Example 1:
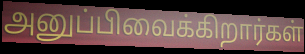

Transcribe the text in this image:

அனுப்பிவைக்கிறார்கள்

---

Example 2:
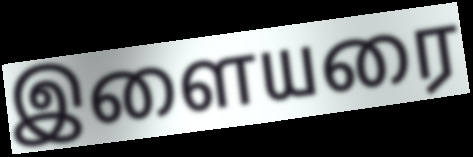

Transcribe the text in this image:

இளையரை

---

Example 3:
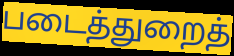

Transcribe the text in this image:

படைத்துறைத்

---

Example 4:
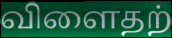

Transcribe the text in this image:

விளைதற்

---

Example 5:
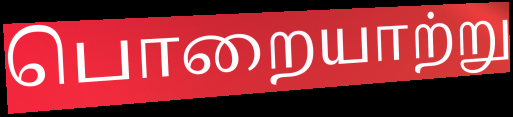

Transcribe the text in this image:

பொறையாற்று